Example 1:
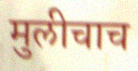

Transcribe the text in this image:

मुलीचाच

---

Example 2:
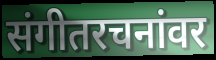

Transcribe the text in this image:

संगीतरचनांवर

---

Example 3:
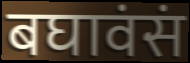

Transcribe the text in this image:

बघावंसं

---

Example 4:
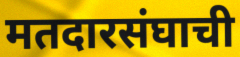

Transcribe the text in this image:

मतदारसंघाची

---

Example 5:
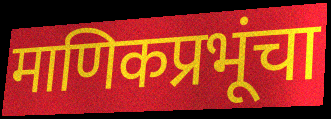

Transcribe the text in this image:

माणिकप्रभूंचा